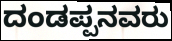
ದಂಡಪ್ಪನವರು